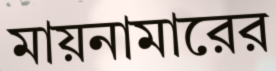
মায়নামারের